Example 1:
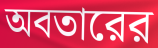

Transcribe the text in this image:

অবতারের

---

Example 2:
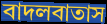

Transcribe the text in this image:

বাদলবাতাস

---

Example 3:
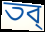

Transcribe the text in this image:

তব্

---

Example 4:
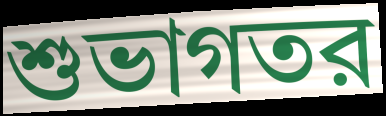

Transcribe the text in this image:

শুভাগতর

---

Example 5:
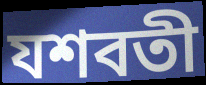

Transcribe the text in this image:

যশবতী